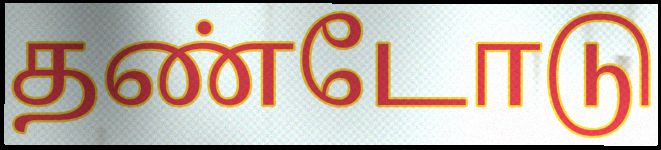
தண்டோடு